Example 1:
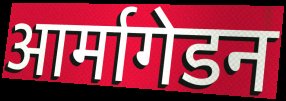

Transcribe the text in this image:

आर्मागेडन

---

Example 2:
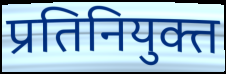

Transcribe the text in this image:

प्रतिनियुक्त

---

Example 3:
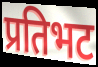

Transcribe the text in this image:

प्रतिभट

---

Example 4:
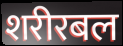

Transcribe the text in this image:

शरीरबल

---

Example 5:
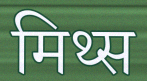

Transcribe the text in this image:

मिथ्स